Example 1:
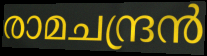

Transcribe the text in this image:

രാമചന്ദ്രൻ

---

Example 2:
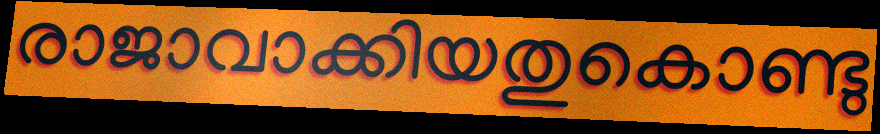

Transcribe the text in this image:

രാജാവാക്കിയതുകൊണ്ടു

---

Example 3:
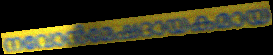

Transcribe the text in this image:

നവോൻമേഷദായകമായ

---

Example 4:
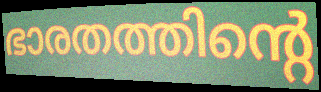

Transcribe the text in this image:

ഭാരതത്തിന്റെ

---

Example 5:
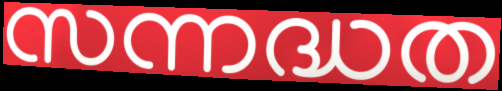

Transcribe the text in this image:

സന്നദ്ധത